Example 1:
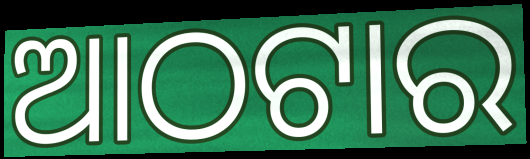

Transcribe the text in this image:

ଆଠଟାର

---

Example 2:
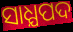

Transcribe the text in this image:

ସାଧ୍ଯପଦ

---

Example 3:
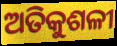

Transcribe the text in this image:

ଅତିକୁଶଳୀ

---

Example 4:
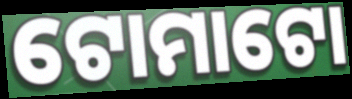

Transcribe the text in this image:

ଟୋମାଟୋ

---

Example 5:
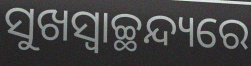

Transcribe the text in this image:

ସୁଖସ୍ଵାଚ୍ଛନ୍ଦ୍ୟରେ